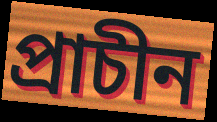
প্ৰাচীন